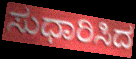
ಸುಧಾರಿಸಿದ